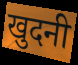
खुदनी